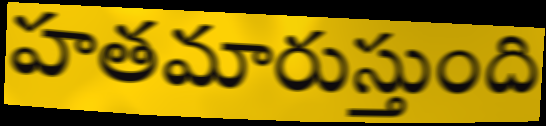
హతమారుస్తుంది